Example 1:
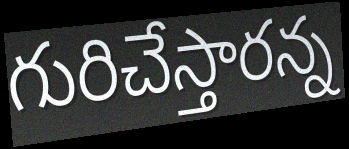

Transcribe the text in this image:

గురిచేస్తారన్న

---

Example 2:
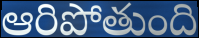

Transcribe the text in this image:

ఆరిపోతుంది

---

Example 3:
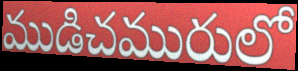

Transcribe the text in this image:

ముడిచమురులో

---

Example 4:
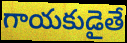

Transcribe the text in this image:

గాయకుడైతే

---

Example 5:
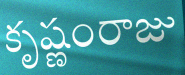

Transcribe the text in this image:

కృష్ణంరాజు